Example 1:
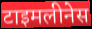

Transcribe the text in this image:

टाइमलीनेस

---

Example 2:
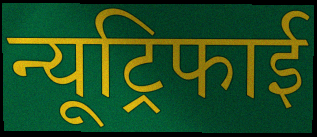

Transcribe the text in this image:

न्यूट्रिफाई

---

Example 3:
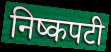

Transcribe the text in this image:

निष्कपटी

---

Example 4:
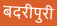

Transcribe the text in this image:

बदरीपुरी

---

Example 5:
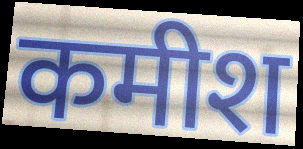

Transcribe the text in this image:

कमीश